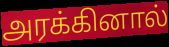
அரக்கினால்